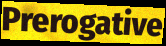
Prerogative